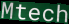
Mtech